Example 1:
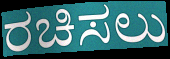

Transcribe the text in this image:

ರಚಿಸಲು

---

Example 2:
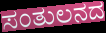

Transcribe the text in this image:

ಸಂತುಲನದ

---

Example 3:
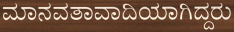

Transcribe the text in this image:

ಮಾನವತಾವಾದಿಯಾಗಿದ್ದರು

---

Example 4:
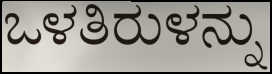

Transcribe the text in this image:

ಒಳತಿರುಳನ್ನು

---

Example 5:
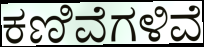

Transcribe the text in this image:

ಕಣಿವೆಗಳಿವೆ